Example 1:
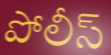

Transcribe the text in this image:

పోలీస్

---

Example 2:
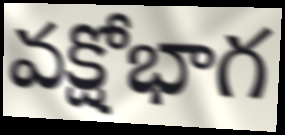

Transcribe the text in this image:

వక్షోభాగ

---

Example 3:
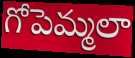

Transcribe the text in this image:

గోపెమ్మలా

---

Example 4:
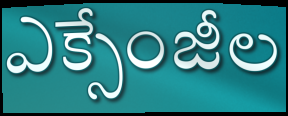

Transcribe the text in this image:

ఎక్సేంజీల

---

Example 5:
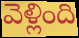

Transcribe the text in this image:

వెళ్లింది